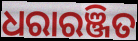
ଧରାରଞ୍ଜିତ